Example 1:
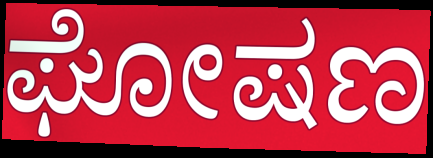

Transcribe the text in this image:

ಘೋಷಣ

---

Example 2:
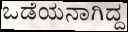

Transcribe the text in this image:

ಒಡೆಯನಾಗಿದ್ದ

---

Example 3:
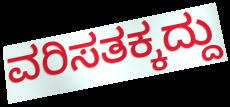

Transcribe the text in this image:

ವರಿಸತಕ್ಕದ್ದು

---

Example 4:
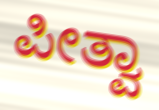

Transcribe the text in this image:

ಪೀತ್ವಾ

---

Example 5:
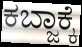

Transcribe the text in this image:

ಕಬ್ಜಾಕ್ಕೆ